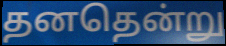
தனதென்று